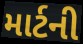
માર્ટની